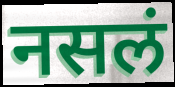
नसलं